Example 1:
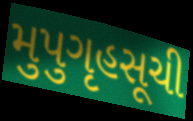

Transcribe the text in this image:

મુપુગૃહસૂચી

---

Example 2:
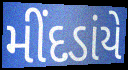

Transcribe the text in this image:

મીંદડાંયે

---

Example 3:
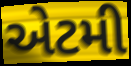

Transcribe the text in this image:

એટમી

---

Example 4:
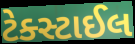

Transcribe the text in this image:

ટેક્સ્ટાઈલ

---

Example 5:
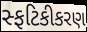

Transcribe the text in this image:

સ્ફટિકીકરણ